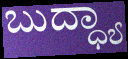
ಬುದ್ಧ್ಯಾ